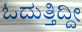
ಓದುತ್ತಿದ್ದೀ